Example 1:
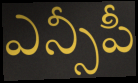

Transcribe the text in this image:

ఎన్సీపీ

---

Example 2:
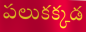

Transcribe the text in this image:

పలుకక్కడ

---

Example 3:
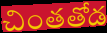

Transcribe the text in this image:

చింతతోడ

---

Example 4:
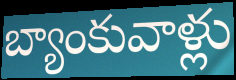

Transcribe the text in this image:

బ్యాంకువాళ్లు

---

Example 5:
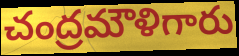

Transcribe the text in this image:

చంద్రమౌళిగారు